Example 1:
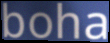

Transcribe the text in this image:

boha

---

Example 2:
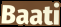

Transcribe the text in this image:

Baati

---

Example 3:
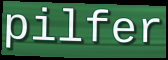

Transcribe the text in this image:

pilfer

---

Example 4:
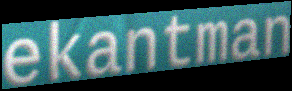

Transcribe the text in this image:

ekantman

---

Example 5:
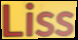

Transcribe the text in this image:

Liss